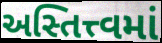
અસ્તિત્ત્વમાં